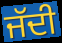
ਜੱਦੀ